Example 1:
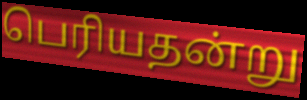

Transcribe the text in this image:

பெரியதன்று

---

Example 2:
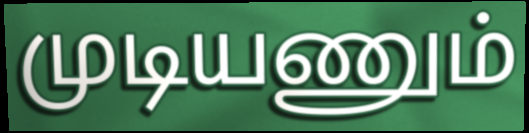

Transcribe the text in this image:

முடியணும்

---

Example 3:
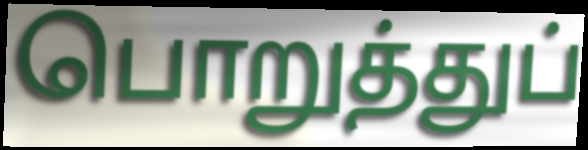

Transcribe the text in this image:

பொறுத்துப்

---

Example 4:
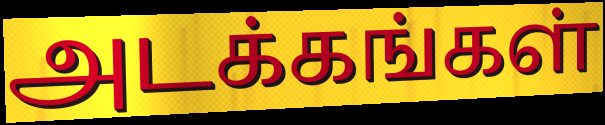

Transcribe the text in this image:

அடக்கங்கள்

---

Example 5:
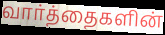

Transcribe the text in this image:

வார்த்தைகளின்